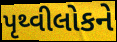
પૃથ્વીલોકને